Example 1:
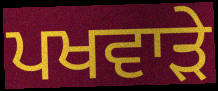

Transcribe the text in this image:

ਪਖਵਾੜੇ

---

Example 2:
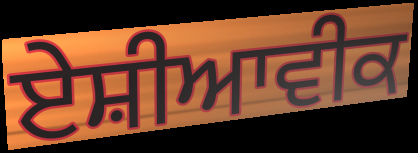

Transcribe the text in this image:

ਏਸ਼ੀਆਵੀਕ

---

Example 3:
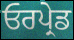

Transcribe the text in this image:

ਓਰਪ੍ਰੇਡ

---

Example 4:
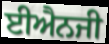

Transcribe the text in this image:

ਈਐਨਜੀ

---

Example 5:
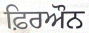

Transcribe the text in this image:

ਫ਼ਿਰਔਨ